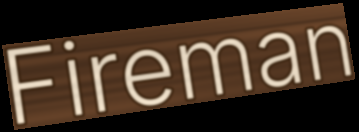
Fireman